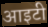
आइटी